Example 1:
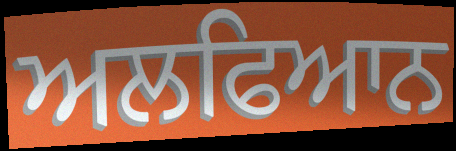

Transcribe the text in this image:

ਅਲਫਿਆਨ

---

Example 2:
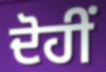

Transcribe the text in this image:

ਦੋਹੀਂ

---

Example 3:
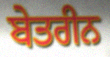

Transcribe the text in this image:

ਬੇਤਰੀਨ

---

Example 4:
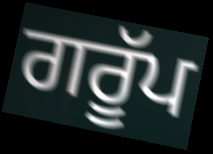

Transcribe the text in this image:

ਗਰੂੱਪ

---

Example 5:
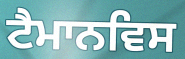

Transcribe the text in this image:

ਟੈਮਾਨਵਿਸ